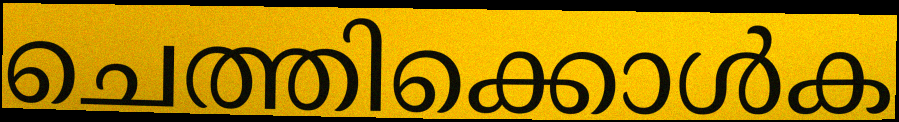
ചെത്തിക്കൊൾക